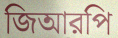
জিআরপি